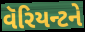
વૅરિયન્ટને